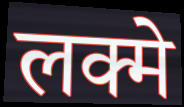
लक्मे